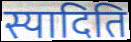
स्यादिति